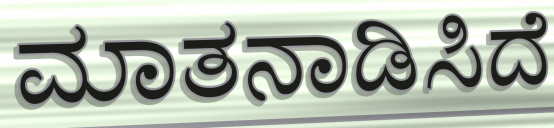
ಮಾತನಾಡಿಸಿದೆ